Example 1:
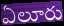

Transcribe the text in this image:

ఏలూరు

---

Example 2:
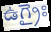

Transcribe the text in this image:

ఉగ్రైః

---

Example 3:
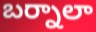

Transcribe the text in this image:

బర్నాలా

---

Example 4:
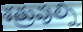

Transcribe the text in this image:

శత్రువుల్ని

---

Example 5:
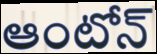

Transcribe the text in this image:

ఆంటోన్